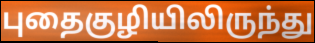
புதைகுழியிலிருந்து